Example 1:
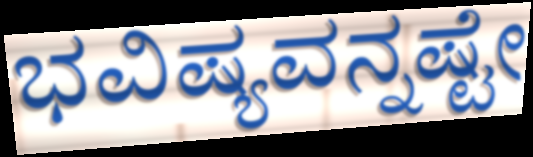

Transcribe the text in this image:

ಭವಿಷ್ಯವನ್ನಷ್ಟೇ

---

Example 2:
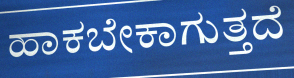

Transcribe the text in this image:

ಹಾಕಬೇಕಾಗುತ್ತದೆ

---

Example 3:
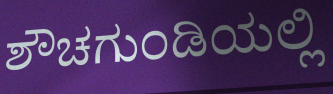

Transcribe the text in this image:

ಶೌಚಗುಂಡಿಯಲ್ಲಿ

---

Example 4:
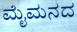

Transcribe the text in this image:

ಮೈಮನದ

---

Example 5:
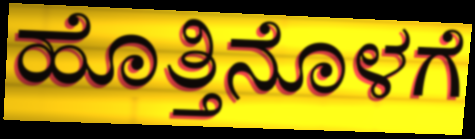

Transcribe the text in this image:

ಹೊತ್ತಿನೊಳಗೆ